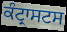
ਕੰਟ੍ਰਾਸਟਸ